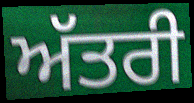
ਅੱਤਰੀ